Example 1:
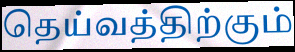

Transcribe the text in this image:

தெய்வத்திற்கும்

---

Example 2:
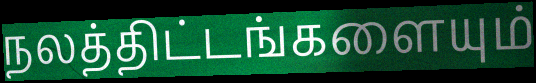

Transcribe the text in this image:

நலத்திட்டங்களையும்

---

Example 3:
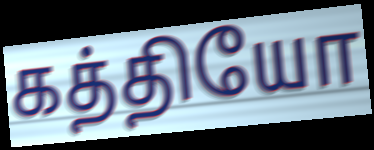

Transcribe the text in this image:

கத்தியோ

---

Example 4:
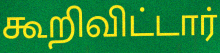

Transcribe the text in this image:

கூறிவிட்டார்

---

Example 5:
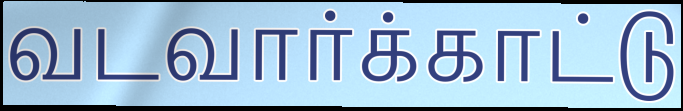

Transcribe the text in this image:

வடவார்க்காட்டு